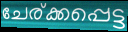
ചേര്ക്കപ്പെട്ട